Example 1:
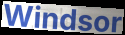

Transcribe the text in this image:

Windsor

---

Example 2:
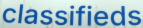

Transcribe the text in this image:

classifieds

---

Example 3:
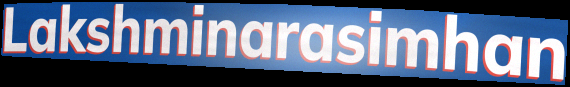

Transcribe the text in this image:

Lakshminarasimhan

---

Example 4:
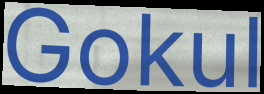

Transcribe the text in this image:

Gokul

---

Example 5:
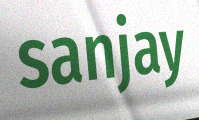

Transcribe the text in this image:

sanjay